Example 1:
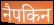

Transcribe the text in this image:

नैपकिन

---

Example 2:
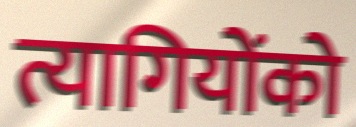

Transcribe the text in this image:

त्यागियोंको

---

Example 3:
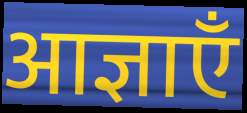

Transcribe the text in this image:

आज्ञाएँ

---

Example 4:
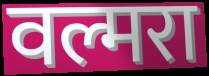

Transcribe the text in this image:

वल्मरा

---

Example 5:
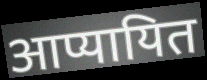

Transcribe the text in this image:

आप्यायित